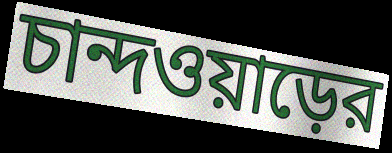
চান্দওয়াড়ের